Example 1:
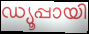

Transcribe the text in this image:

ഡ്യൂപ്പായി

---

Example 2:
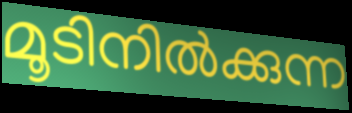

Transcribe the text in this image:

മൂടിനിൽക്കുന്ന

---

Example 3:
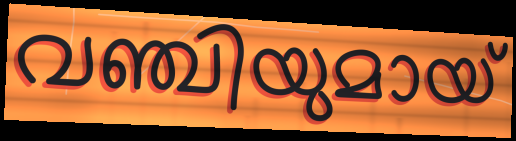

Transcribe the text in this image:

വഞ്ചിയുമായ്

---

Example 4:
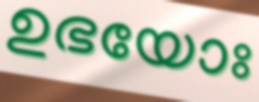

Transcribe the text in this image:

ഉഭയോഃ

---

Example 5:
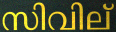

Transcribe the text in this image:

സിവില്